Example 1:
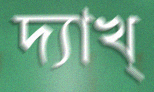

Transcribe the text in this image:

দ্যাখ্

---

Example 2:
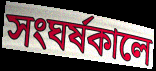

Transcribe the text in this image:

সংঘর্ষকালে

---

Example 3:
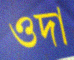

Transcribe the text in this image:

ওদা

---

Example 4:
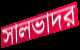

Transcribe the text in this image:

সালভাদর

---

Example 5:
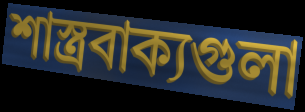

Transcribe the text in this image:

শাস্ত্রবাক্যগুলা